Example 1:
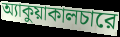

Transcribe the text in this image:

অ্যাকুয়াকালচারে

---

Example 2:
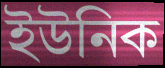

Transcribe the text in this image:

ইউনিক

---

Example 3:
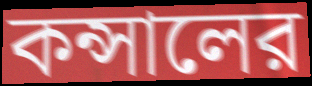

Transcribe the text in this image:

কন্সালের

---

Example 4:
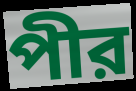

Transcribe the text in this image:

পীর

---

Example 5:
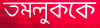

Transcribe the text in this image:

তমলুককে